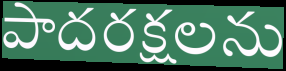
పాదరక్షలను